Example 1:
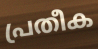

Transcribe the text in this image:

പ്രതീക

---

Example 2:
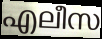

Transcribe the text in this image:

എലീസ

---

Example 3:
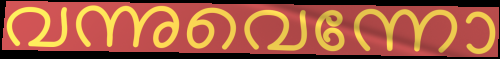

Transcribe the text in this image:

വന്നുവെന്നോ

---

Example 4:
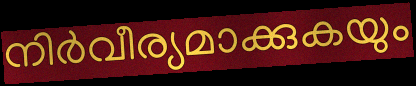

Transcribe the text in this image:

നിർവീര്യമാക്കുകയും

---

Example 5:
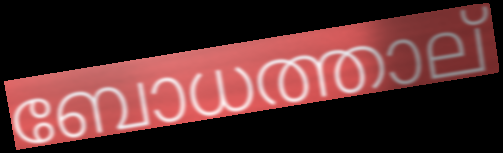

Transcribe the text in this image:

ബോധത്താല്